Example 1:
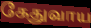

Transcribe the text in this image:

கேதுவாய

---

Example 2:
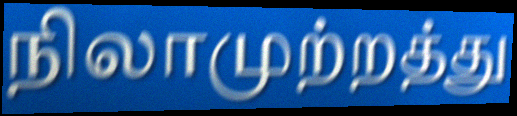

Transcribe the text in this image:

நிலாமுற்றத்து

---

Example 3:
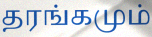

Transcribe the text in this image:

தரங்கமும்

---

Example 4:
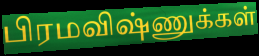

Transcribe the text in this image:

பிரமவிஷ்ணுக்கள்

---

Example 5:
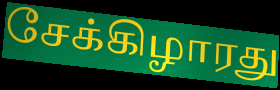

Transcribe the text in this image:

சேக்கிழாரது